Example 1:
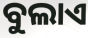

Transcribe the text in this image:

ବୁଲାଏ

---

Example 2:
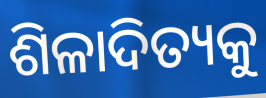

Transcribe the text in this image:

ଶିଳାଦିତ୍ୟକୁ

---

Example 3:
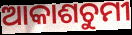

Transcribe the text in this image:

ଆକାଶଚୁମୀ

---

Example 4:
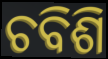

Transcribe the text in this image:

ଚବିଶି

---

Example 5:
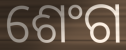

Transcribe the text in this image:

ଶେଂଗ